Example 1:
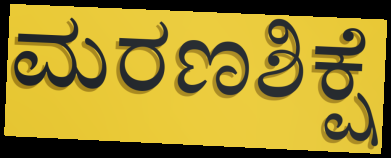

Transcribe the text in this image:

ಮರಣಶಿಕ್ಷೆ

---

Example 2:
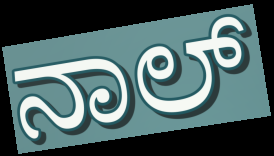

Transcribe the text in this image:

ನಾಲ್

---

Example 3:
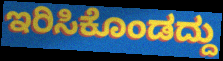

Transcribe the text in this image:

ಇರಿಸಿಕೊಂಡದ್ದು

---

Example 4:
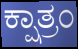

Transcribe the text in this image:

ಕ್ಷಾತ್ರಂ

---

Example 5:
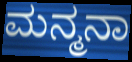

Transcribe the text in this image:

ಮನ್ಮನಾ